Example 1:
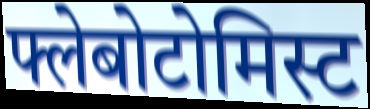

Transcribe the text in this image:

फ्लेबोटोमिस्ट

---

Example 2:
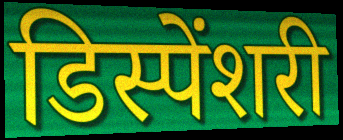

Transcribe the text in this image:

डिस्पेंशरी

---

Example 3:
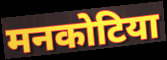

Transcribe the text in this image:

मनकोटिया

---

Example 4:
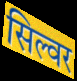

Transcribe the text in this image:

सिल्वर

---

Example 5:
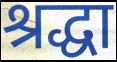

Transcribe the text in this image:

श्रद्धा